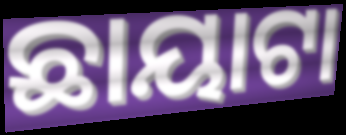
ଛାୟାଟା